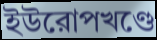
ইউরোপখণ্ডে